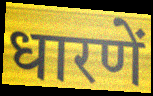
धारणें